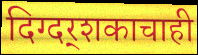
दिग्दर्शकाचाही